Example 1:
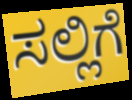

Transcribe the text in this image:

ಸಲ್ಲಿಗೆ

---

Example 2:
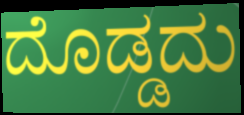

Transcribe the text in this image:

ದೊಡ್ಡದು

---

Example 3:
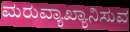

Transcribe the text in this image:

ಮರುವ್ಯಾಖ್ಯಾನಿಸುವ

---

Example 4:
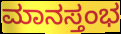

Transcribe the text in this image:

ಮಾನಸ್ತಂಭ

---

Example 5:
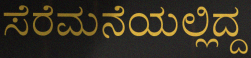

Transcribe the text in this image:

ಸೆರೆಮನೆಯಲ್ಲಿದ್ದ